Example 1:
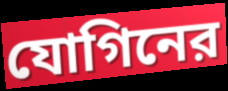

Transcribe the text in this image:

যোগিনের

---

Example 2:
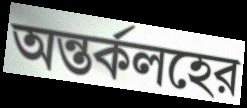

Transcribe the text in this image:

অন্তর্কলহের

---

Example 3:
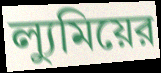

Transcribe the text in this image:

ল্যুমিয়ের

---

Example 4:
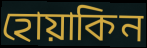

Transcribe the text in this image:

হোয়াকিন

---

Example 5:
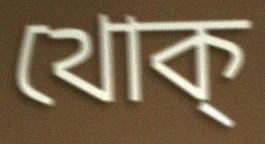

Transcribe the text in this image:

থোক্